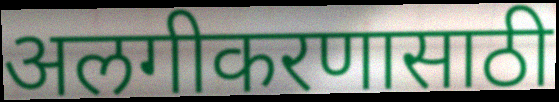
अलगीकरणासाठी